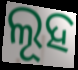
ଲୂହ